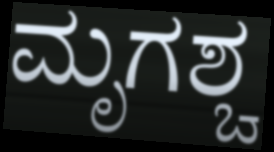
ಮೃಗಶ್ಚ